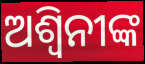
ଅଶ୍ୱିନୀଙ୍କ